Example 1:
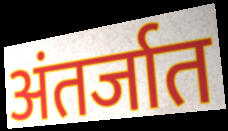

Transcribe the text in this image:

अंतर्जात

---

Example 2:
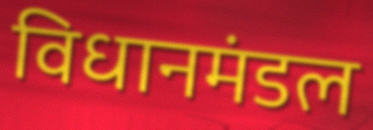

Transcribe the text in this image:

विधानमंडल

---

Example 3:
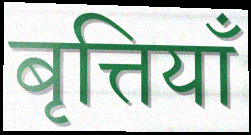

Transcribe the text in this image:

बृत्तियाँ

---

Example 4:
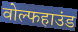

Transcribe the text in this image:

वोल्फहाउंड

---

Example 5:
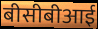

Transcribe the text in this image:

बीसीबीआई